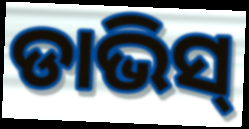
ଡାଭିସ୍